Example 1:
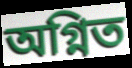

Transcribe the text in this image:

অগ্নিত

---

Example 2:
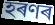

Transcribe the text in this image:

হৰণৰ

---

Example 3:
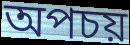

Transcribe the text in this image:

অপচয়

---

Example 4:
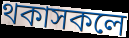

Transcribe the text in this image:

থকাসকলে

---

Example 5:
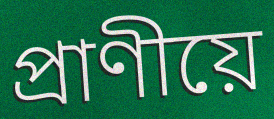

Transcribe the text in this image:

প্ৰাণীয়ে